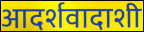
आदर्शवादाशी